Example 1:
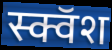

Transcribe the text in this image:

स्क्वॅश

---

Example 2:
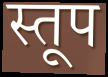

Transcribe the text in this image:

स्तूप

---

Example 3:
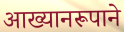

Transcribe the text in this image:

आख्यानरूपाने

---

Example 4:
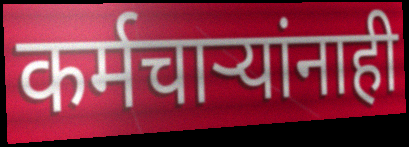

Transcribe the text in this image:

कर्मचार्‍यांनाही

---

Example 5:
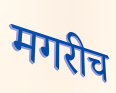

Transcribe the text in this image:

मगरीच